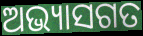
ଅଭ୍ଯାସଗତ